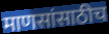
माणसांसाठीच